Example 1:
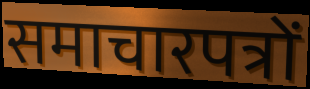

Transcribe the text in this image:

समाचारपत्रों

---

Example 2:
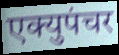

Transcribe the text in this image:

एक्युपंचर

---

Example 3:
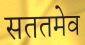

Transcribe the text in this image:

सततमेव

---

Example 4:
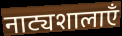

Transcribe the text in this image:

नाट्यशालाएँ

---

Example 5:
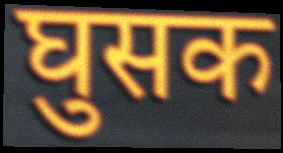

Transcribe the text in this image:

घुसक